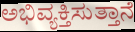
ಅಭಿವ್ಯಕ್ತಿಸುತ್ತಾನೆ